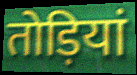
तोड़ियां